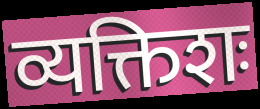
व्यक्तिशः